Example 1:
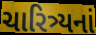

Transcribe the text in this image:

ચારિત્ર્યનાં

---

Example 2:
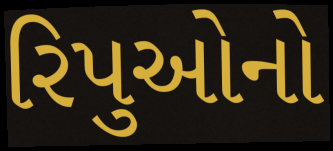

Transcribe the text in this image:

રિપુઓનો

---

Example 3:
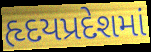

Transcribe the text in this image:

હૃદયપ્રદેશમાં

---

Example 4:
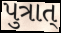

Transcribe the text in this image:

પુત્રાત્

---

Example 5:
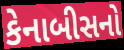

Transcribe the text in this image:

કેનાબીસનો